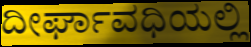
ದೀರ್ಘಾವಧಿಯಲ್ಲಿ